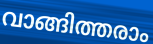
വാങ്ങിത്തരാം